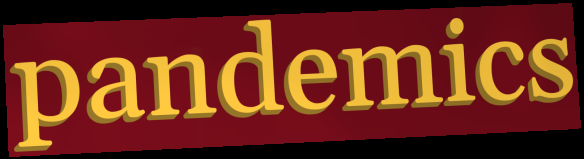
pandemics